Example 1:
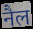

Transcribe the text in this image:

नैल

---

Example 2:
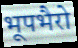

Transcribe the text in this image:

भूपभैरो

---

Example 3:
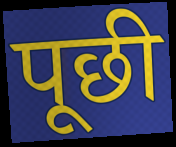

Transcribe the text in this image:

पूछी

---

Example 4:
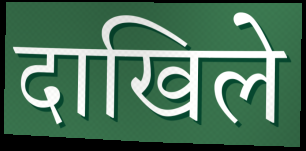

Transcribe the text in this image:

दाखिले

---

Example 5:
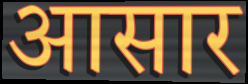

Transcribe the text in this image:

आसार